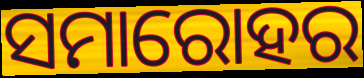
ସମାରୋହର